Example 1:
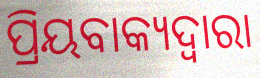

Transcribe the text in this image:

ପ୍ରିୟବାକ୍ୟଦ୍ୱାରା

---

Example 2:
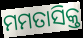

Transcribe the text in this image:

ମମତାସିକ୍ତ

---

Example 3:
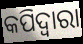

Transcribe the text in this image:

କପିଦ୍ୱାରା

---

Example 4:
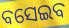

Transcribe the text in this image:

ବସେଇବ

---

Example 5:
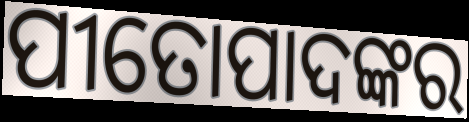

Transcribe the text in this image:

ପୀତୋପାଦଙ୍କର